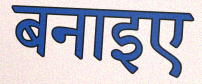
बनाइए